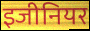
इजीनियर